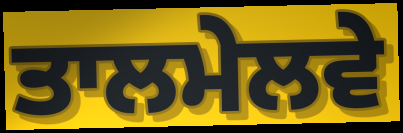
ਤਾਲਮੇਲਵੇ